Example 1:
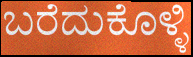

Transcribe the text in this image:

ಬರೆದುಕೊಳ್ಳಿ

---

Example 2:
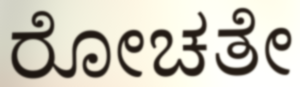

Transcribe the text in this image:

ರೋಚತೇ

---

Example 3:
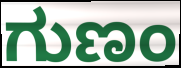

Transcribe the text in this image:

ಗುಣಂ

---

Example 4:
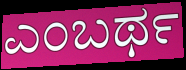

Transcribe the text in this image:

ಎಂಬರ್ಥ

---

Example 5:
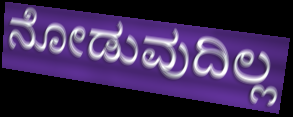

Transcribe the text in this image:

ನೋಡುವುದಿಲ್ಲ